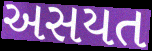
અસયત